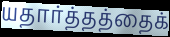
யதார்த்தத்தைக்